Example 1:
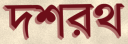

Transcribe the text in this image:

দশরথ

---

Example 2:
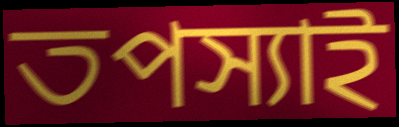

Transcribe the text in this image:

তপস্যাই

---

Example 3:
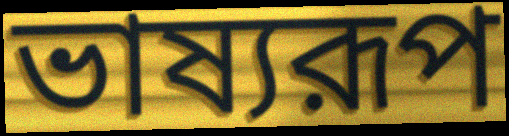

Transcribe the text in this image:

ভাষ্যরূপ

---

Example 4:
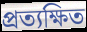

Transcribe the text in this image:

প্রত্যক্ষিত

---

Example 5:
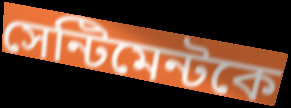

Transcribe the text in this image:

সেন্টিমেন্টকে